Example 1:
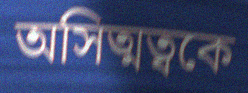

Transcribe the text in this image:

অসিত্মত্বকে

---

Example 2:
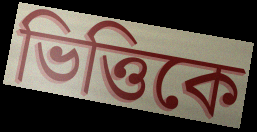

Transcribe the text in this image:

ভিত্তিকে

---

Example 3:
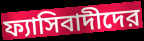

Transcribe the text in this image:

ফ্যাসিবাদীদের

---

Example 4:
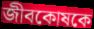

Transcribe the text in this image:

জীবকোষকে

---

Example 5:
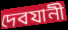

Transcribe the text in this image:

দেবযানী